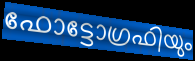
ഫോട്ടോഗ്രഫിയും